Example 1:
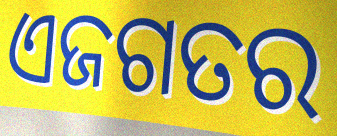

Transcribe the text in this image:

ଏଜଗତର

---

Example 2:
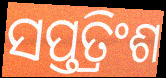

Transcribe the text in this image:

ସପ୍ତତ୍ରିଂଶ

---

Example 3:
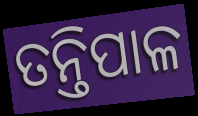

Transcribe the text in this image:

ତନ୍ତିପାଳ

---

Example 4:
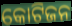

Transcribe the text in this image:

କୋଟିଜନ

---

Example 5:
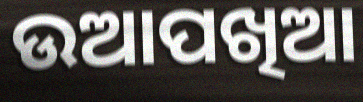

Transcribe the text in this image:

ଉଆପଖିଆ